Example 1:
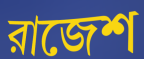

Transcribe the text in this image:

রাজেশ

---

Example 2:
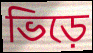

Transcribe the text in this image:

ভিড়ে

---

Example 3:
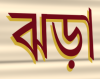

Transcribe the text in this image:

ঝড়া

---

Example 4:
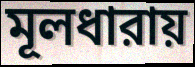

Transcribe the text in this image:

মূলধারায়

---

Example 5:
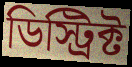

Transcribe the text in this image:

ডিস্ট্রিক্ট